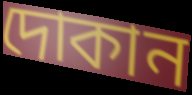
দোকান